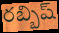
రబ్బిష్